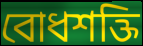
বোধশক্তি